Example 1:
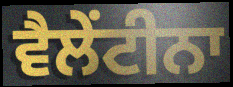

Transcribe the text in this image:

ਵੈਲੇਂਟੀਨਾ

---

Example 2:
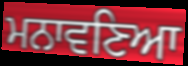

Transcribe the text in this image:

ਮਨਾਵਣਿਆ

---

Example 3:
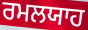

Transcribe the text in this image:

ਰਮਲਯਾਹ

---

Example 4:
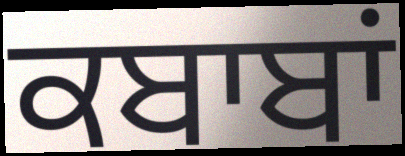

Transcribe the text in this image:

ਕਬਾਬਾਂ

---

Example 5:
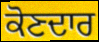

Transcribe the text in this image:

ਕੋਣਦਾਰ